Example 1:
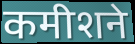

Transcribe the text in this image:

कमीशने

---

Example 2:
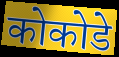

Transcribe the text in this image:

कोकोडे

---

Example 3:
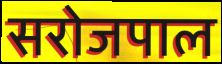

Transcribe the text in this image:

सरोजपाल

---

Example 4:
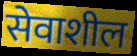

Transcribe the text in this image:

सेवाशील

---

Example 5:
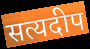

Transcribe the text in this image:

सत्यदीप